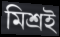
মিশ্ৰই